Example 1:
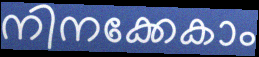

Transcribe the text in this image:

നിനക്കേകാം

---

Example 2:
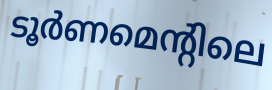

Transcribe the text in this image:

ടൂർണമെന്റിലെ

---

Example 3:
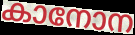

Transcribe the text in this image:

കാനോന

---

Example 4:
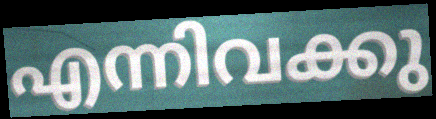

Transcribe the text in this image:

എന്നിവക്കു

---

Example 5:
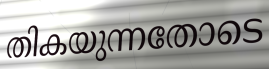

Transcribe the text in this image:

തികയുന്നതോടെ